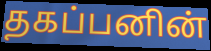
தகப்பனின்